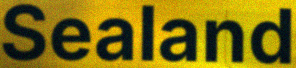
Sealand